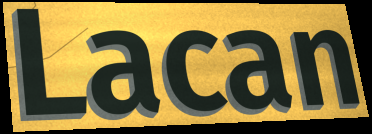
Lacan